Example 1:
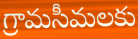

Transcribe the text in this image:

గ్రామసీమలకు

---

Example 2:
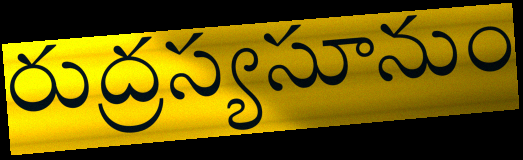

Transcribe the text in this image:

రుద్రస్యసూనుం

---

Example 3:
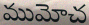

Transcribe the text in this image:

ముమోచ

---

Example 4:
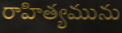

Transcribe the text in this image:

రాహిత్యమును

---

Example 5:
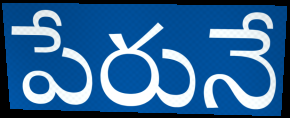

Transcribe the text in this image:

పేరునే